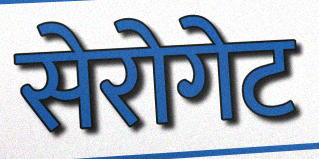
सेरोगेट